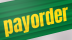
payorder